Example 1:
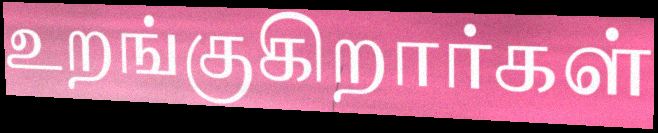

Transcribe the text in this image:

உறங்குகிறார்கள்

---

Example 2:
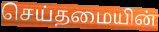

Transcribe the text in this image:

செய்தமையின்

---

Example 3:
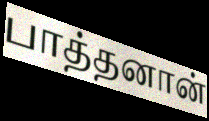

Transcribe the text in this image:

பாத்தனான்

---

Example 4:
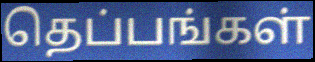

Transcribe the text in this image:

தெப்பங்கள்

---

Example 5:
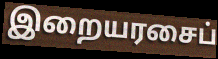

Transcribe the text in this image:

இறையரசைப்